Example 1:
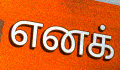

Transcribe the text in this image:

எனக்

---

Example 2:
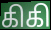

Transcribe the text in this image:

கிகி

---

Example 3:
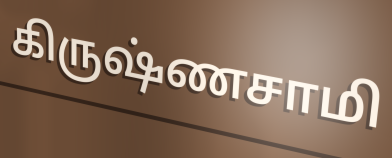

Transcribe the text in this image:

கிருஷ்ணசாமி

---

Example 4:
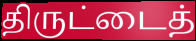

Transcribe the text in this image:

திருட்டைத்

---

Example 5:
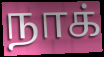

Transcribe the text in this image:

நாக்